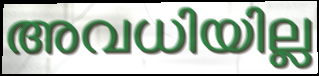
അവധിയില്ല